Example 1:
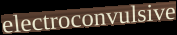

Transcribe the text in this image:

electroconvulsive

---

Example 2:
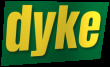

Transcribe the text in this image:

dyke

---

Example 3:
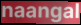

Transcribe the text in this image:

naangal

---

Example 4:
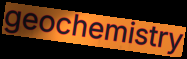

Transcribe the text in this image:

geochemistry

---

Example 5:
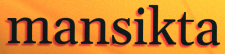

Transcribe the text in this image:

mansikta